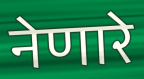
नेणारे